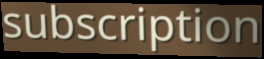
subscription